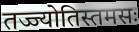
तज्ज्योतिस्तमसः